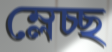
ম্লেচ্ছ